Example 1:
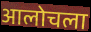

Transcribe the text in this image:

आलोचला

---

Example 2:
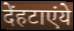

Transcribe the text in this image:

देंहटाएंये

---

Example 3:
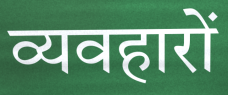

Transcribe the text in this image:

व्यवहारों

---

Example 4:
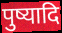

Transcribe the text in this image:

पुष्यादि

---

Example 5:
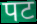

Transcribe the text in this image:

पट